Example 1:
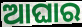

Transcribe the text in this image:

ଆଘାର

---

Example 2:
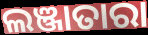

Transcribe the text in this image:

ଲଞ୍ଜାତାରା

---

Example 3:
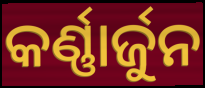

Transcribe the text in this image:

କର୍ଣ୍ଣାର୍ଜୁନ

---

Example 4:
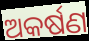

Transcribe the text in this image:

ଅକର୍ଷଣ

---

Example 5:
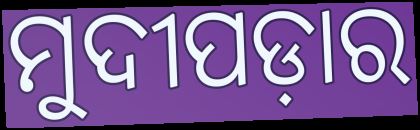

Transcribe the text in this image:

ମୁଦୀପଡ଼ାର